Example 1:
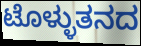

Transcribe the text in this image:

ಟೊಳ್ಳುತನದ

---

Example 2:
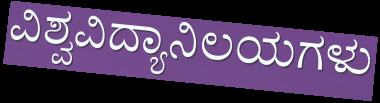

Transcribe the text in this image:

ವಿಶ್ವವಿದ್ಯಾನಿಲಯಗಳು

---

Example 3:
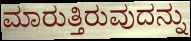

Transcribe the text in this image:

ಮಾರುತ್ತಿರುವುದನ್ನು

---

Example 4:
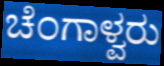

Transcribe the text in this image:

ಚೆಂಗಾಳ್ವರು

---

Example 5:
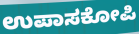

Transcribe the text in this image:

ಉಪಾಸಕೋಪಿ